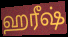
ஹரீஷ்